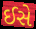
ઈસે